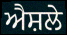
ਐਸ਼ਲੇ